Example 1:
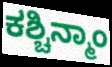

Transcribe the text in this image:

ಕಶ್ಚಿನ್ಮಾಂ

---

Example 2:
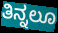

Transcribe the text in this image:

ತಿನ್ನಲೂ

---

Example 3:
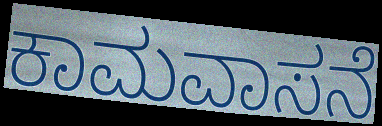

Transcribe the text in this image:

ಕಾಮವಾಸನೆ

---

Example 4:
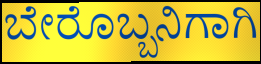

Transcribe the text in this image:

ಬೇರೊಬ್ಬನಿಗಾಗಿ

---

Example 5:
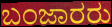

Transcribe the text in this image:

ಬಂಜಾರರು